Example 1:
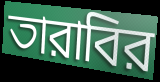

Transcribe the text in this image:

তারাবির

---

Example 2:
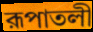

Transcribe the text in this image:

রূপাতলী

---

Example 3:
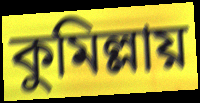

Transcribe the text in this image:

কুমিল্লায়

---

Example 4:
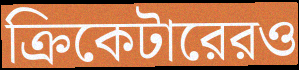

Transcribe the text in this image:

ক্রিকেটারেরও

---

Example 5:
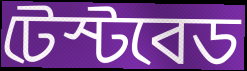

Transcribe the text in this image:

টেস্টবেড